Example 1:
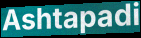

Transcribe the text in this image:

Ashtapadi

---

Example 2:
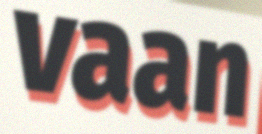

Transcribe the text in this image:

vaan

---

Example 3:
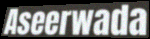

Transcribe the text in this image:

Aseerwada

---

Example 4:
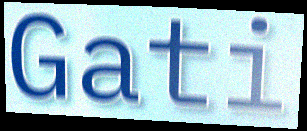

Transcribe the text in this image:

Gati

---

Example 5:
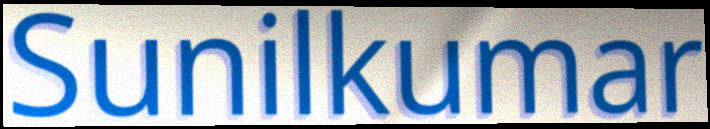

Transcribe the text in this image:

Sunilkumar